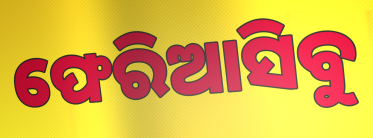
ଫେରିଆସିବୁ